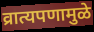
व्रात्यपणामुळे